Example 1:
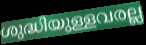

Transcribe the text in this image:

ശുദ്ധിയുള്ളവരല്ല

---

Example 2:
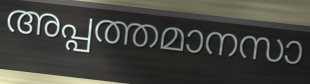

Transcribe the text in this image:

അപ്പത്തമാനസാ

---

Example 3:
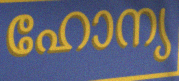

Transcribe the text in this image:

ഹോന്യ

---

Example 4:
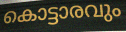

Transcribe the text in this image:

കൊട്ടാരവും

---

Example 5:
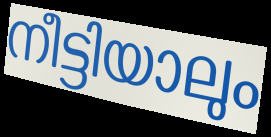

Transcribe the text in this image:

നീട്ടിയാലും